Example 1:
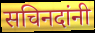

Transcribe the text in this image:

सचिनदांनी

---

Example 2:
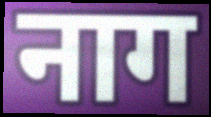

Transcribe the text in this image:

नाग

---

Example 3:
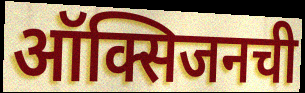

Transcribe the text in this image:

ऑक्सिजनची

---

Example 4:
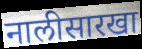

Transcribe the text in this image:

नालीसारखा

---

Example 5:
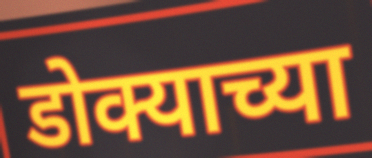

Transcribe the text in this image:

डोक्याच्या